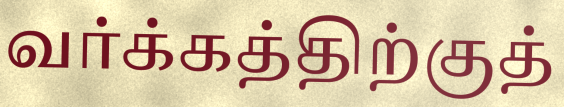
வர்க்கத்திற்குத்